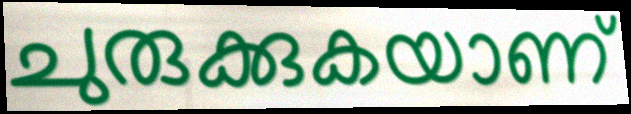
ചുരുക്കുകയാണ്